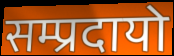
सम्प्रदायो